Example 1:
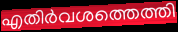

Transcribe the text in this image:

എതിർവശത്തെത്തി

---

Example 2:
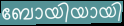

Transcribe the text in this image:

ബോയിയായി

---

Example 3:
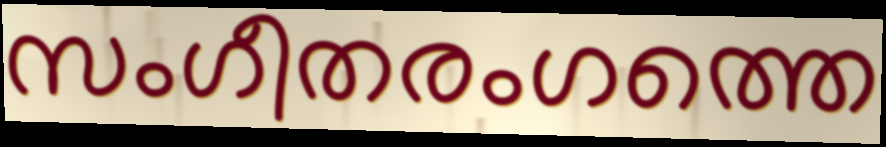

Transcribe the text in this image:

സംഗീതരംഗത്തെ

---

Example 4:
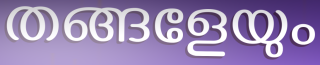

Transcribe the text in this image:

തങ്ങളേയും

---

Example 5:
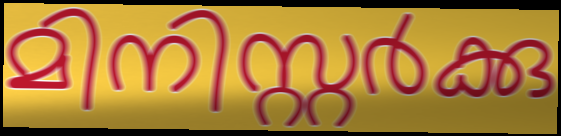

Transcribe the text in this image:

മിനിസ്റ്റർക്കു